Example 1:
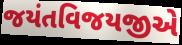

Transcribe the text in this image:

જયંતવિજયજીએ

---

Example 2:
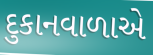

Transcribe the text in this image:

દુકાનવાળાએ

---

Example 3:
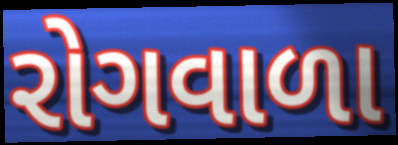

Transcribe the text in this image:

રોગવાળા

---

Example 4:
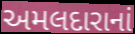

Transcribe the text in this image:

અમલદારાનાં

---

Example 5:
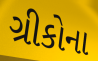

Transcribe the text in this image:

ગ્રીકોના